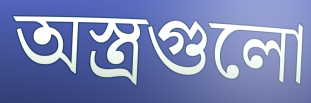
অস্ত্রগুলো